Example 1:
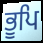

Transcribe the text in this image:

ਭੂਪਿ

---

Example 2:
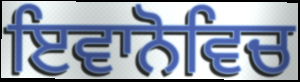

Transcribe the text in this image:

ਇਵਾਨੋਵਿਚ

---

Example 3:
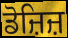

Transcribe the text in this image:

ਡੋਜ਼ਿਜ਼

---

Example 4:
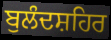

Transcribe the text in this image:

ਬੁਲੰਦਸ਼ਹਿਰ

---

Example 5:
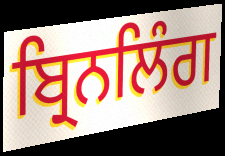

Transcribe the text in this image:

ਬ੍ਰਿਨਲਿੰਗ